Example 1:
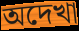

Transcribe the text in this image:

অদেখা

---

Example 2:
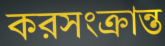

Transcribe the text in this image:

করসংক্রান্ত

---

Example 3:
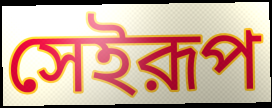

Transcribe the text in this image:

সেইরূপ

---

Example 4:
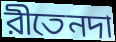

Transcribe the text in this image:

রীতেনদা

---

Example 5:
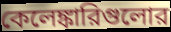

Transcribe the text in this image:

কেলেঙ্কারিগুলোর